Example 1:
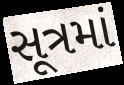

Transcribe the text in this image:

સૂત્રમાં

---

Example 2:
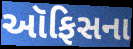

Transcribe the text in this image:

ઑફિસના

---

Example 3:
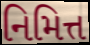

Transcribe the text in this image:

નિમિત્ત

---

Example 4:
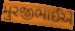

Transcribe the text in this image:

મુરજીભાઈએ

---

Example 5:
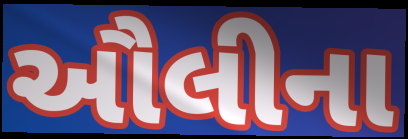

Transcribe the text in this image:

ઔલીના